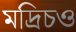
মদ্রিচও